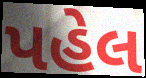
પહેલ